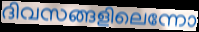
ദിവസങ്ങളിലെന്നോ